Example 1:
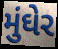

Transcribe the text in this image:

મુંઘેર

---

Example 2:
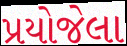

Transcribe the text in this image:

પ્રયોજેલા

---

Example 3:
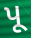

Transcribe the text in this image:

પૂ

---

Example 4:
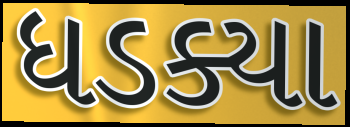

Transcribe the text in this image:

ધડક્યા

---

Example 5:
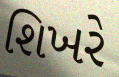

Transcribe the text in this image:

શિખરે